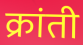
क्रांती